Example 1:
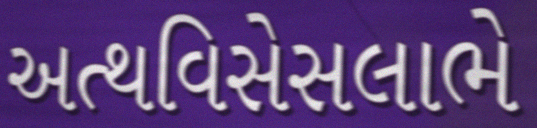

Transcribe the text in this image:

અત્થવિસેસલાભે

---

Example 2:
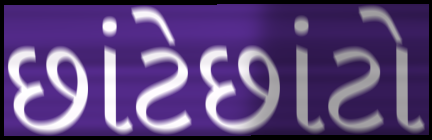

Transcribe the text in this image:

છાંટેછાંટો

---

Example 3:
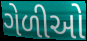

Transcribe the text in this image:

ગેળીઓ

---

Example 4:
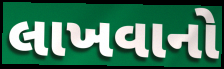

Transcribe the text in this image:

લાખવાનો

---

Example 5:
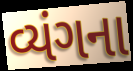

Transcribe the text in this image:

વ્યંગના